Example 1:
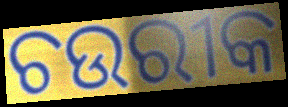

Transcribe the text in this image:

ଚଉରୀକ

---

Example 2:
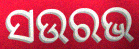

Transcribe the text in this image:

ସଉରଭ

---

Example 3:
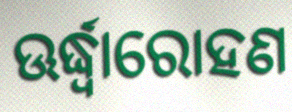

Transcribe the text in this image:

ଊର୍ଦ୍ଧ୍ୱାରୋହଣ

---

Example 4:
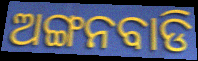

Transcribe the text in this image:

ଅଙ୍ଗନବାଡି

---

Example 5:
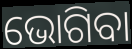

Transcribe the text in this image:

ଭୋଗିବା